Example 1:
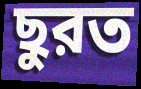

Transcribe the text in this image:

ছুরত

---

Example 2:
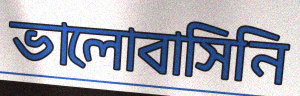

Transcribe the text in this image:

ভালোবাসিনি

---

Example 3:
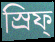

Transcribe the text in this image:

স্রিফ্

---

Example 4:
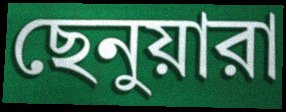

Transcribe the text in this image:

ছেনুয়ারা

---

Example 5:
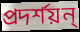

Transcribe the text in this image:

প্রদর্শয়ন্